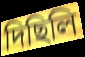
দিছিলি